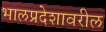
भालप्रदेशावरील